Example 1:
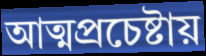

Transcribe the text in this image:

আত্মপ্রচেষ্টায়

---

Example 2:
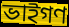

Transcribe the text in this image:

ভাইগণ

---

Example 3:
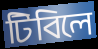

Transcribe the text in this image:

টিবিলে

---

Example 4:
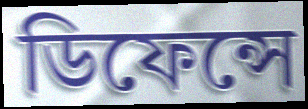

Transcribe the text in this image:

ডিফেন্সে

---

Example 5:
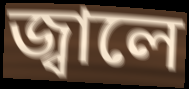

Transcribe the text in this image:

জ্বালে